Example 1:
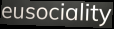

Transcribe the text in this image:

eusociality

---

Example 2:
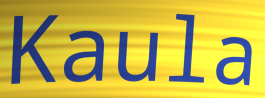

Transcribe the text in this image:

Kaula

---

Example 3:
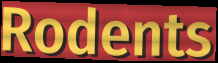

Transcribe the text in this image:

Rodents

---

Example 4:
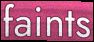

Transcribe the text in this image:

faints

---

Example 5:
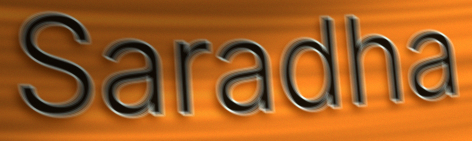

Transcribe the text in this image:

Saradha